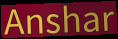
Anshar